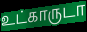
உட்காருடா